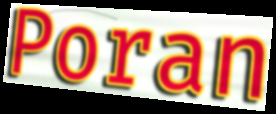
Poran